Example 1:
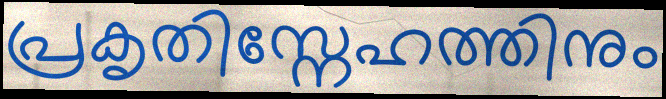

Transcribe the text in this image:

പ്രകൃതിസ്നേഹത്തിനും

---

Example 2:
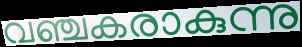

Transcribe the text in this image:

വഞ്ചകരാകുന്നു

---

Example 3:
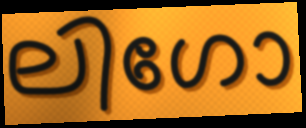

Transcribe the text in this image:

ലിഗോ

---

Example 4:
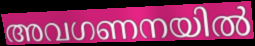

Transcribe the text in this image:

അവഗണനയിൽ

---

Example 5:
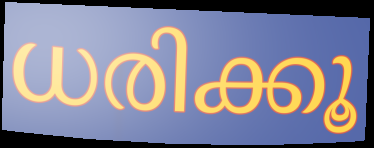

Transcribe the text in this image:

ധരിക്കൂ